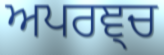
ਅਪਰਞ੍ਚ